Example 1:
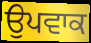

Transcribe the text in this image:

ਉਪਵਾਕ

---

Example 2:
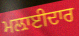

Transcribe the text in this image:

ਮਲ਼ਾਈਦਾਰ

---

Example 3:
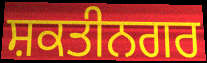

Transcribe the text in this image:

ਸ਼ਕਤੀਨਗਰ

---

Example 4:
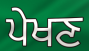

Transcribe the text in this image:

ਪੇਖਣ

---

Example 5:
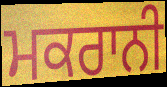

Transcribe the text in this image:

ਮਕਰਾਨੀ